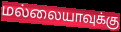
மல்லையாவுக்கு